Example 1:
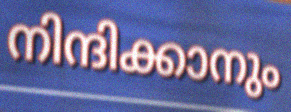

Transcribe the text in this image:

നിന്ദിക്കാനും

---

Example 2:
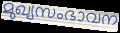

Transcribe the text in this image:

മുഖ്യസംഭാവന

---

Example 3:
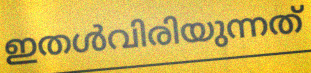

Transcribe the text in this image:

ഇതൾവിരിയുന്നത്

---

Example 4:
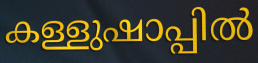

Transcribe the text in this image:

കള്ളുഷാപ്പിൽ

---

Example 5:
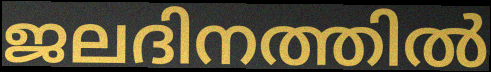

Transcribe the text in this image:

ജലദിനത്തിൽ